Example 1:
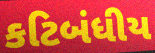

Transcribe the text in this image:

કટિબંધીય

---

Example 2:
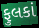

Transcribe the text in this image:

ફુલકાં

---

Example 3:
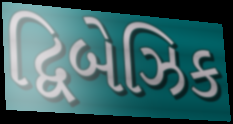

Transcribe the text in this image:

દ્વિબેઝિક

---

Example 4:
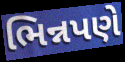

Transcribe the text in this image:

ભિન્નપણે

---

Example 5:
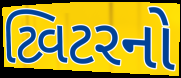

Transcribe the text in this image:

ટ્વિટરનો